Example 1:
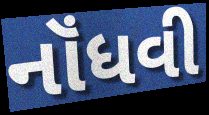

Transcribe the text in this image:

નૉંધવી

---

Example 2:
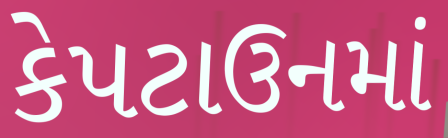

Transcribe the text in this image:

કેપટાઉનમાં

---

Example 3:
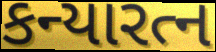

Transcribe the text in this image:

કન્યારત્ન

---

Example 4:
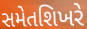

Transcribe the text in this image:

સમેતશિખરે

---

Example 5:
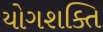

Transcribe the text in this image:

યોગશક્તિ